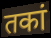
तकां